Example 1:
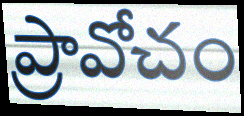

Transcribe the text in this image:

ప్రావోచం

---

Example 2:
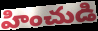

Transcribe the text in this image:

హించుడి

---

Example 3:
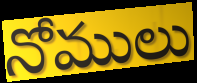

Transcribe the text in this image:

నోములు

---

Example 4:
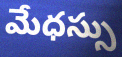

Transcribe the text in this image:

మేధస్సు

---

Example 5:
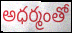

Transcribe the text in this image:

అధర్మంతో